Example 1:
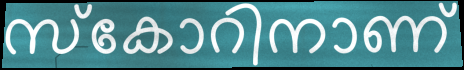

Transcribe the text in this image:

സ്കോറിനാണ്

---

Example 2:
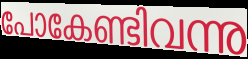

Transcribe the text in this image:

പോകേണ്ടിവന്നു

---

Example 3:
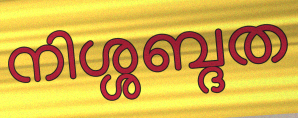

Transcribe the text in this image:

നിശ്ശബ്ദത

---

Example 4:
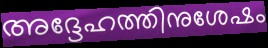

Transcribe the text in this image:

അദ്ദേഹത്തിനുശേഷം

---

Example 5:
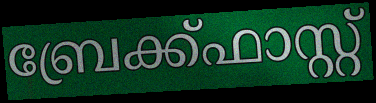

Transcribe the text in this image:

ബ്രേക്ക്ഫാസ്റ്റ്